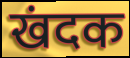
खंदक